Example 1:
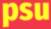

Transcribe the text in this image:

psu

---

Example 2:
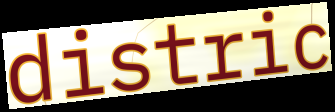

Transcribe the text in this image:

distric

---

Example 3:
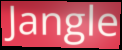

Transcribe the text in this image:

Jangle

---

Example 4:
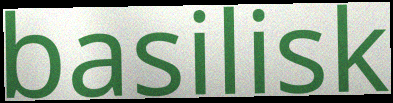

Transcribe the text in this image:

basilisk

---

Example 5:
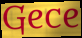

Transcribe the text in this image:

Gece